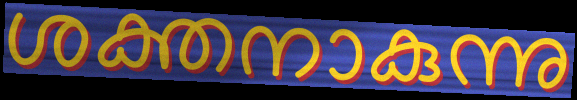
ശക്തനാകുന്നു